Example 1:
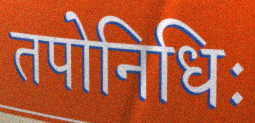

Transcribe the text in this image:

तपोनिधिः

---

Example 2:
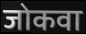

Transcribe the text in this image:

जोकवा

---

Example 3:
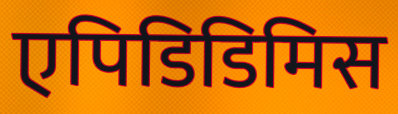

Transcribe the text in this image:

एपिडिडिमिस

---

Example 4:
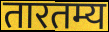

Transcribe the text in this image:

तारतम्य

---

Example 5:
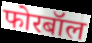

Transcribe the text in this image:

फोरबॉल